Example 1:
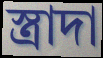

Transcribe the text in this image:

স্ত্রাদা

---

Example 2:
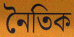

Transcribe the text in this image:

নৈতিক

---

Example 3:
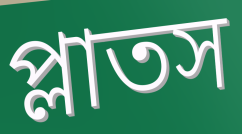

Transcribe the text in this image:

প্লাতস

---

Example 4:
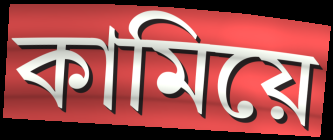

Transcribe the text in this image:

কামিয়ে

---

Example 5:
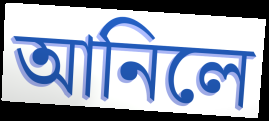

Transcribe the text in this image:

আনিলে